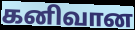
கனிவான